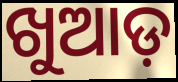
ଖୁଆଡ଼